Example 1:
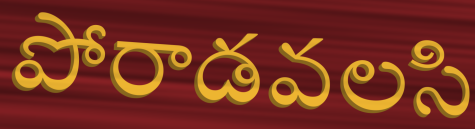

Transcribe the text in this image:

పోరాడవలసి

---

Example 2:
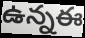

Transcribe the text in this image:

ఉన్నఈ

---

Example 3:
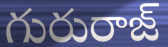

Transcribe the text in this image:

గురురాజ్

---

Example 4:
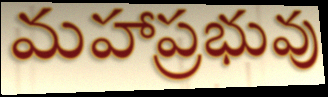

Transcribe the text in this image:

మహాప్రభువు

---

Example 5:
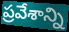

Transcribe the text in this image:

ప్రవేశాన్ని